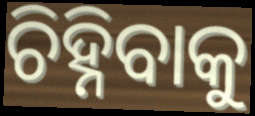
ଚିହ୍ନିବାକୁ